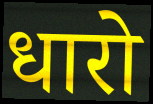
धारो